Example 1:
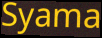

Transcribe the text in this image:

Syama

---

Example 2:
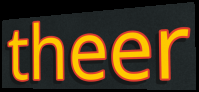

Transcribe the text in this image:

theer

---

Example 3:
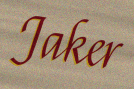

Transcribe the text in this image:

Jaker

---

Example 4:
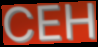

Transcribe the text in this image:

CEH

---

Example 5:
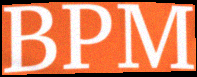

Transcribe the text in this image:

BPM